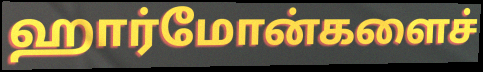
ஹார்மோன்களைச்